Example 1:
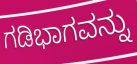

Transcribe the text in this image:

ಗಡಿಭಾಗವನ್ನು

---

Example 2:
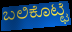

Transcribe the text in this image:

ಬಲಿಕೊಟ್ಟೆ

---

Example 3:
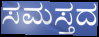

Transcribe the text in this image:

ಸಮಸ್ತದ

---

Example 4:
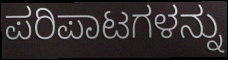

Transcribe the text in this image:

ಪರಿಪಾಟಗಳನ್ನು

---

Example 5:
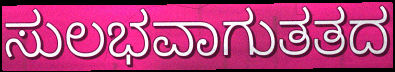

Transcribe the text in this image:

ಸುಲಭವಾಗುತತದ